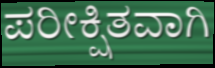
ಪರೀಕ್ಷಿತವಾಗಿ